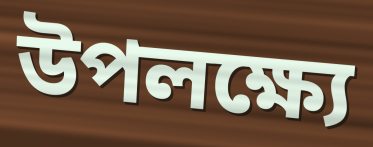
উপলক্ষ্যে